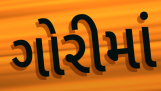
ગોરીમાં